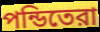
পন্ডিতেরা